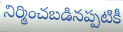
నిర్మించబడినప్పటికీ